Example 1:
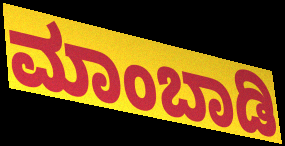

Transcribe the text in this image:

ಮಾಂಬಾಡಿ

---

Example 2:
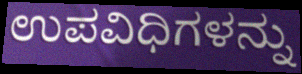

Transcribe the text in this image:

ಉಪವಿಧಿಗಳನ್ನು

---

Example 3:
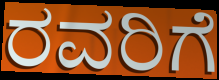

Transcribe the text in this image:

ರವರಿಗೆ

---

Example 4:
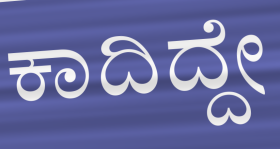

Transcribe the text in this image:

ಕಾದಿದ್ದೇ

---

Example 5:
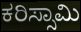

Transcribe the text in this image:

ಕರಿಸ್ಸಾಮಿ